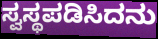
ಸ್ವಸ್ಥಪಡಿಸಿದನು